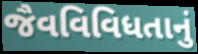
જૈવવિવિધતાનું